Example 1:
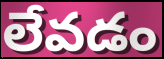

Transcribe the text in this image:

లేవడం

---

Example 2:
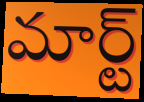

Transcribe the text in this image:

మార్ట్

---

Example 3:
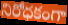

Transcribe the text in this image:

నిరోధకంగా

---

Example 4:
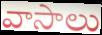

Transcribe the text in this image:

వాసాలు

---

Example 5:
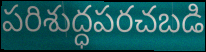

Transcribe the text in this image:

పరిశుద్ధపరచబడి